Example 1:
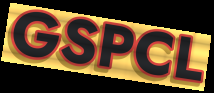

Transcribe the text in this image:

GSPCL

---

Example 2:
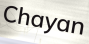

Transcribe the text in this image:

Chayan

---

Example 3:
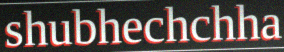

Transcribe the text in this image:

shubhechchha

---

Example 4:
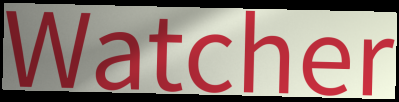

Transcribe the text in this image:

Watcher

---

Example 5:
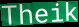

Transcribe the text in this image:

Theik